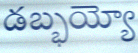
డబ్భయ్యో